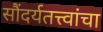
सौंदर्यतत्त्वांचा